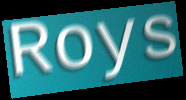
Roys